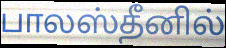
பாலஸ்தீனில்